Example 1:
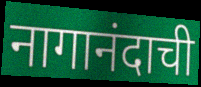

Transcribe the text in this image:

नागानंदाची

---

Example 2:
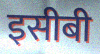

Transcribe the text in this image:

इसीबी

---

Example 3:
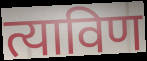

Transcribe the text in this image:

त्याविण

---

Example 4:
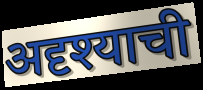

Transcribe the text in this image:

अदृश्याची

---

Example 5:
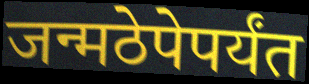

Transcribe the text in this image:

जन्मठेपेपर्यंत